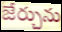
జేర్చును